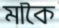
মাকৈ